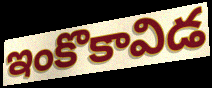
ఇంకొకావిడ